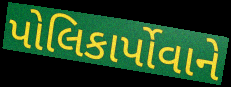
પોલિકાર્પોવાને